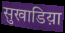
सुखाडिय़ा